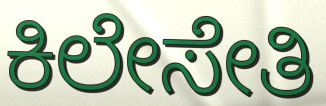
ಕಿಲೇಸೇತಿ